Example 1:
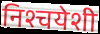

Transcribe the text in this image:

निश्चयेशी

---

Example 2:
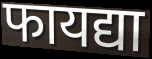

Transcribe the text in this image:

फायद्या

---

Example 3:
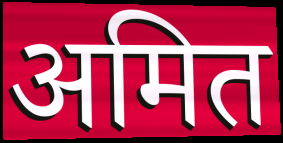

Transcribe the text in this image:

अमित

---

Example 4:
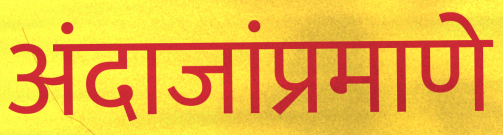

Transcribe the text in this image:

अंदाजांप्रमाणे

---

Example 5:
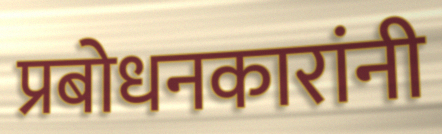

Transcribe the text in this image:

प्रबोधनकारांनी